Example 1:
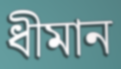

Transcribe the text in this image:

ধীমান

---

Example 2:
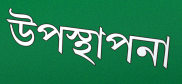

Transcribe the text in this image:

উপস্থাপনা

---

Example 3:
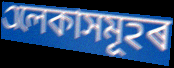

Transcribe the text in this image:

এলেকাসমূহৰ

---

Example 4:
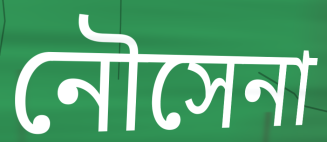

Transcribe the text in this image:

নৌসেনা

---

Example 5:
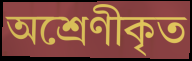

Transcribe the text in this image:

অশ্ৰেণীকৃত